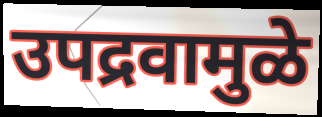
उपद्रवामुळे